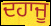
ਦਹਾਜੂ